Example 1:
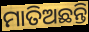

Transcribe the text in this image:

ମାତିଅଛନ୍ତି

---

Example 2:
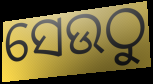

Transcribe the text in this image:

ସେଉଠୁ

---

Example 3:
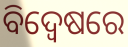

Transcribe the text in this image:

ବିଦ୍ୱେଷରେ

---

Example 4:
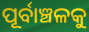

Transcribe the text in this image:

ପୂର୍ବାଞ୍ଚଳକୁ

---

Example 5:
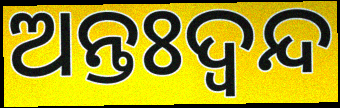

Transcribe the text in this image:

ଅନ୍ତଃଦ୍ବନ୍ଦ